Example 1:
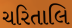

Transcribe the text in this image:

ચરિતાલિ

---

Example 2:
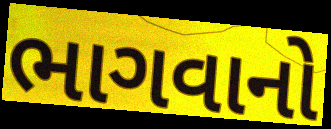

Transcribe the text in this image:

ભાગવાનો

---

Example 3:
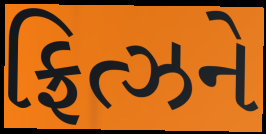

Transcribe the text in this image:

ફ્રિત્ઝને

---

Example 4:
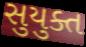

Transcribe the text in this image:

સુયુક્ત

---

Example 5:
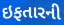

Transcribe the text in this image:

ઇફતારની